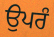
ਉਪਰੰ